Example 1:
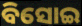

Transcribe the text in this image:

ବିସୋଇ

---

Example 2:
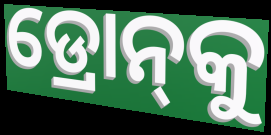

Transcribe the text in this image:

ଡ୍ରୋନ୍‌କୁ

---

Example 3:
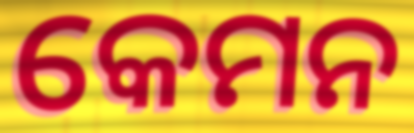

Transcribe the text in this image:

କେମନ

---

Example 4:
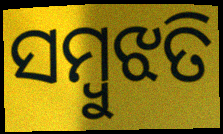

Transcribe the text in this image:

ସମ୍ବୁଝତି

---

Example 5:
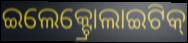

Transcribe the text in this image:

ଇଲେକ୍ଟ୍ରୋଲାଇଟିକ୍